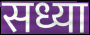
सध्या